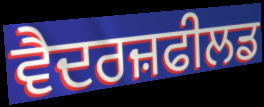
ਵੈਦਰਜ਼ਫੀਲਡ